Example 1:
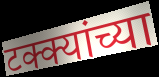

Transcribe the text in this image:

टक्क्यांच्या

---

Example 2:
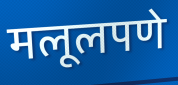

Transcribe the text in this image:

मलूलपणे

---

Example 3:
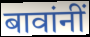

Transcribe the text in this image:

बावांनीं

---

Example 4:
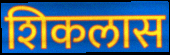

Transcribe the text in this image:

शिकलास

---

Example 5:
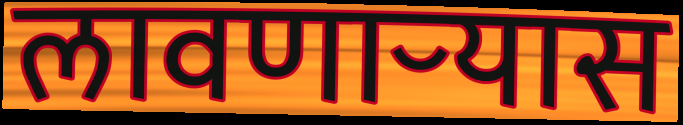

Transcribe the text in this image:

लावणाऱ्यास